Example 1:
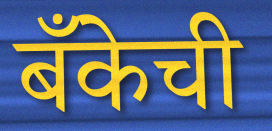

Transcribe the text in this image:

बँकेची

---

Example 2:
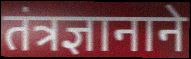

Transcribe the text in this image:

तंत्रज्ञानाने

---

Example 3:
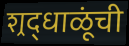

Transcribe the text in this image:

श्रद्धाळूंची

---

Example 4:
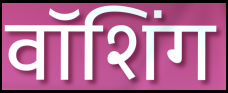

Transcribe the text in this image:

वॉशिंग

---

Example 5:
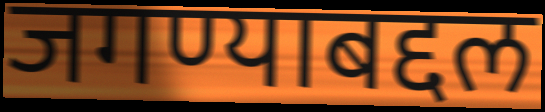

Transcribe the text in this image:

जगण्याबद्दल